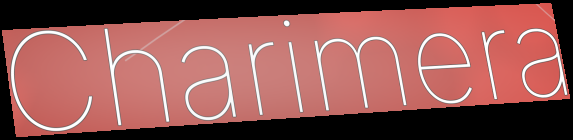
Charimera